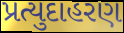
પ્રત્યુદાહરણ